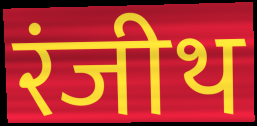
रंजीथ